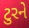
ટુરને